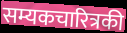
सम्यकचारित्रकी